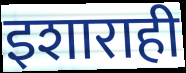
इशाराही